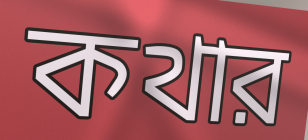
কথার